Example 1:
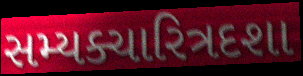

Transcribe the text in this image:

સમ્યક્ચારિત્રદશા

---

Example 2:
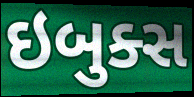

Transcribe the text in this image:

ઇબુક્સ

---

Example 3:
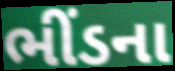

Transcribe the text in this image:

ભીંડના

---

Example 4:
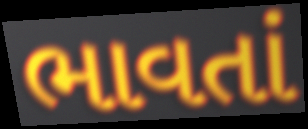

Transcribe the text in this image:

ભાવતાં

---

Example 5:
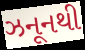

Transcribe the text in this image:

ઝનૂનથી